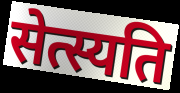
सेत्स्यति